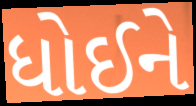
ધોઈને